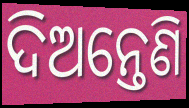
ଦିଅନ୍ତେଣି